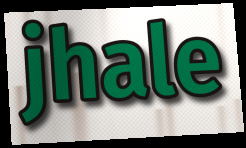
jhale